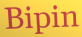
Bipin